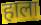
हाला